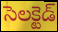
సెలక్టెడ్